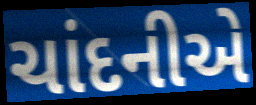
ચાંદનીએ